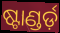
ଷ୍ଟାଣ୍ଡର୍ଡ଼